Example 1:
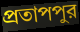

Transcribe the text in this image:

প্রতাপপুর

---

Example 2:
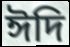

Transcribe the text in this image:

ঈদি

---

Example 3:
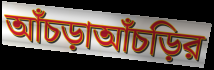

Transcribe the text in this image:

আঁচড়াআঁচড়ির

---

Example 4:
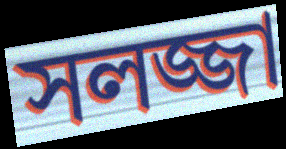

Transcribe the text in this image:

সলজ্জা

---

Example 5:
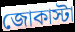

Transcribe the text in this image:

জোকাস্টা